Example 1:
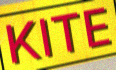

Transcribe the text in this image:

KITE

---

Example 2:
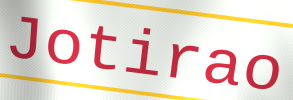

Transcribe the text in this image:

Jotirao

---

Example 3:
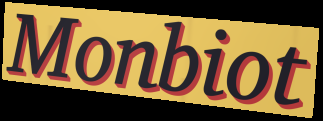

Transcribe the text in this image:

Monbiot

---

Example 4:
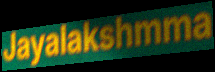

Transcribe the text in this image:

Jayalakshmma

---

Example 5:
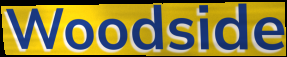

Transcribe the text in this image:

Woodside